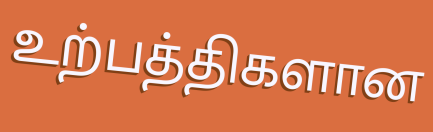
உற்பத்திகளான